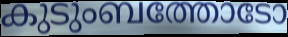
കുടുംബത്തോടോ